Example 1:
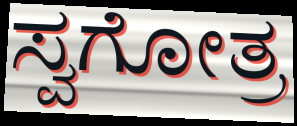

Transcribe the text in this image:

ಸ್ವಗೋತ್ರ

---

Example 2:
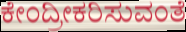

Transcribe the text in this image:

ಕೇಂದ್ರೀಕರಿಸುವಂತೆ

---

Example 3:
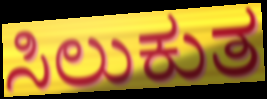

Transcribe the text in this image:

ಸಿಲುಕುತ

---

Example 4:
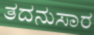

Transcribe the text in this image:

ತದನುಸಾರ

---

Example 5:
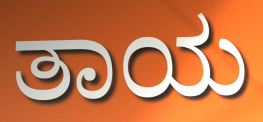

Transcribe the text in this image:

ತಾಯ